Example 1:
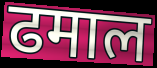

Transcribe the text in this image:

ढमाल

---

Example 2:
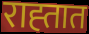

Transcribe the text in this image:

राह्तात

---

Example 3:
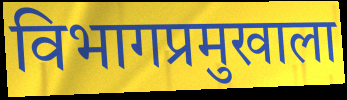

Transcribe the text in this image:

विभागप्रमुखाला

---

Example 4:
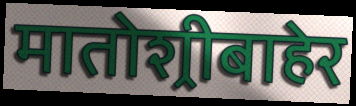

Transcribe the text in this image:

मातोश्रीबाहेर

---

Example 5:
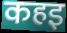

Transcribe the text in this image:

कहइ